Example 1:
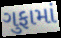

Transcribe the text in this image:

ગુફામાં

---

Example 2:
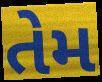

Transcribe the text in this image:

તેમ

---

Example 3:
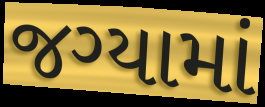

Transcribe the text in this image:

જગ્યામાં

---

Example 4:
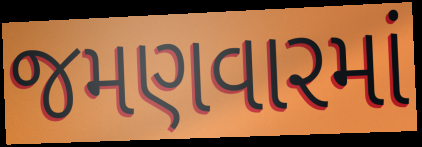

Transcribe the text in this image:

જમણવારમાં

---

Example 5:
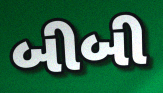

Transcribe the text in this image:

બીબી